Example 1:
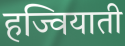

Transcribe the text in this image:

हज्वियाती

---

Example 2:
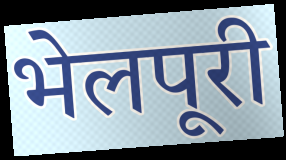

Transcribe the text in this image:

भेलपूरी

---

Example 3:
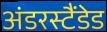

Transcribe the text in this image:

अंडरस्टैंडेड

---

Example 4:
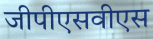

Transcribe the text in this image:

जीपीएसवीएस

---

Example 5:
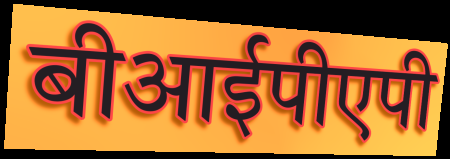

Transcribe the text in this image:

बीआईपीएपी